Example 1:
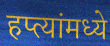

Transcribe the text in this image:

हप्त्यांमध्ये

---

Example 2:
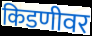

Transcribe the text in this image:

किडणीवर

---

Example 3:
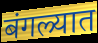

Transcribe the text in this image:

बंगल्यात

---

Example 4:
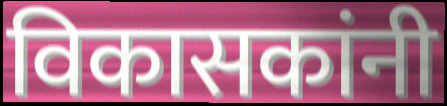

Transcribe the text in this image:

विकासकांनी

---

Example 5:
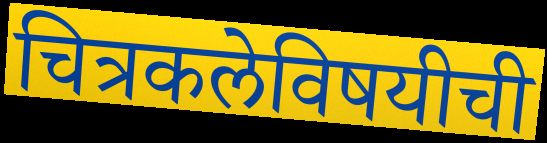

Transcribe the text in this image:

चित्रकलेविषयीची